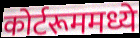
कोर्टरूममध्ये